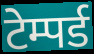
टेम्पर्ड